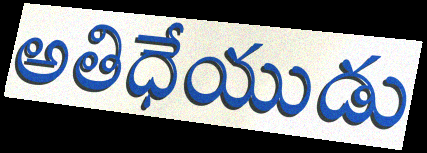
అతిధేయుడు